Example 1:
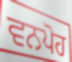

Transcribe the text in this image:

ਵਨਪੋਹ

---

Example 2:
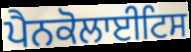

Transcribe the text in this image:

ਪੈਨਕੋਲਾਈਟਿਸ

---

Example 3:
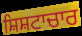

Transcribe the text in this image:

ਸ਼ਿਸ਼ਟਾਚਾਰ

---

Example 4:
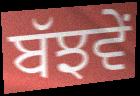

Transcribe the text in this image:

ਬੱਝਵੇਂ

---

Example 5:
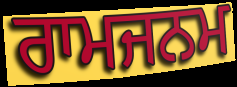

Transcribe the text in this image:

ਰਾਮਜਨਮ